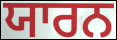
ਯਾਰਨ